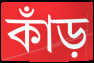
কাঁড়